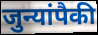
जुन्यांपैकी